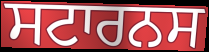
ਸਟਾਰਨਸ